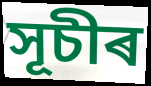
সূচীৰ